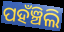
ପହଁଞ୍ଚିଲି